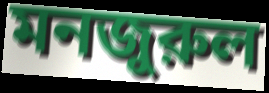
মনজুরুল